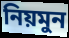
নিয়মুন